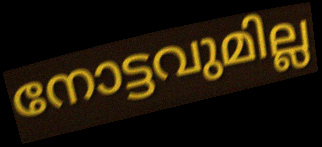
നോട്ടവുമില്ല